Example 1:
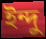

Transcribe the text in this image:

ইন্দু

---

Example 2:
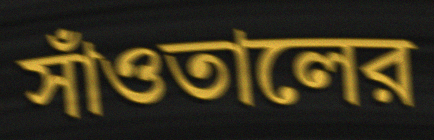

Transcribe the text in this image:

সাঁওতালের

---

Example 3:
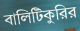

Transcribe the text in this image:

বালিটিকুরির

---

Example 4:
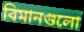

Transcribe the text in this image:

বিমানগুলো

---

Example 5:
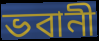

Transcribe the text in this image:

ভবানী